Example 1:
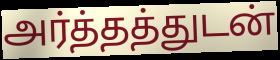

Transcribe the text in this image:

அர்த்தத்துடன்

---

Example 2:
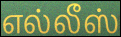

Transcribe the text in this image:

எல்லீஸ்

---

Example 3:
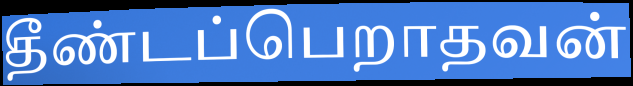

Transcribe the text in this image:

தீண்டப்பெறாதவன்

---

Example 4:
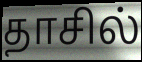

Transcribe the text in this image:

தாசில்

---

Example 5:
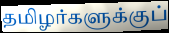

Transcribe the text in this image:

தமிழர்களுக்குப்